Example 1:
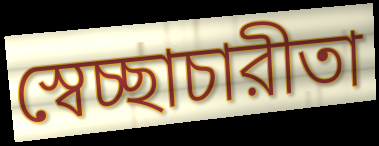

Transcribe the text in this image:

স্বেচ্ছাচারীতা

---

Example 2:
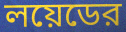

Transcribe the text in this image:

লয়েডের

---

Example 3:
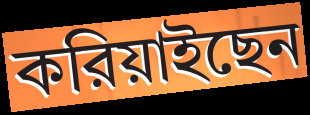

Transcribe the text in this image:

করিয়াইছেন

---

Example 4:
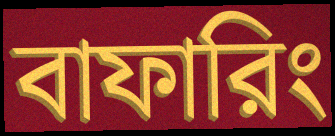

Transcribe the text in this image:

বাফারিং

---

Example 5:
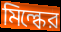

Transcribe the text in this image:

মিল্কের